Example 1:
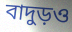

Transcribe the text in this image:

বাদুড়ও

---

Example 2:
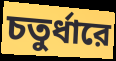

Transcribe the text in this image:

চতুর্ধারে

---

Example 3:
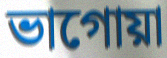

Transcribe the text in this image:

ভাগোয়া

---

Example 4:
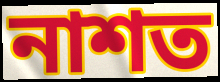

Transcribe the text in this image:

নাশত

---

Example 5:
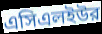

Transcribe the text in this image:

এসিএলইউর